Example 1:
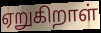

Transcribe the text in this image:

ஏறுகிறாள்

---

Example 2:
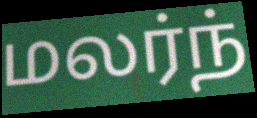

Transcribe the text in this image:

மலர்ந்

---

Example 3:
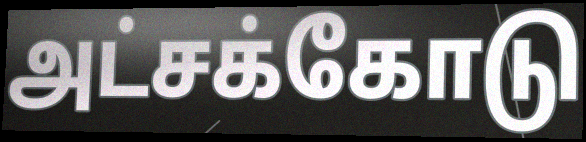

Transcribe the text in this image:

அட்சக்கோடு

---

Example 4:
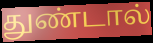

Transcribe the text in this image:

துண்டால்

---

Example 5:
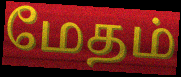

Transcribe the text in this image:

மேதம்